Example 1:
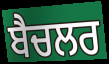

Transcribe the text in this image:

ਬੈਚਲਰ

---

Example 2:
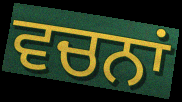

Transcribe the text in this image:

ਵਚਨਾਂ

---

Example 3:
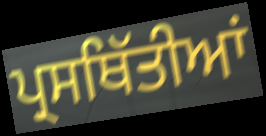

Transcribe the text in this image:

ਪ੍ਰਸਥਿੱਤੀਆਂ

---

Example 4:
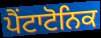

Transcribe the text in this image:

ਪੈਂਟਾਟੋਨਿਕ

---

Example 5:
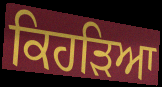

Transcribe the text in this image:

ਕਿਹੜਿਆ